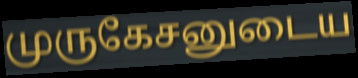
முருகேசனுடைய